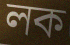
লক